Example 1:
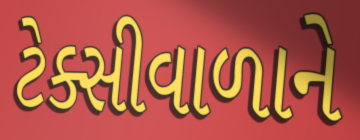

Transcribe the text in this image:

ટેક્સીવાળાને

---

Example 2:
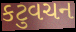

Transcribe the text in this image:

કટુવચન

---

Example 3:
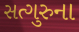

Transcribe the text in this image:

સત્ગુરુના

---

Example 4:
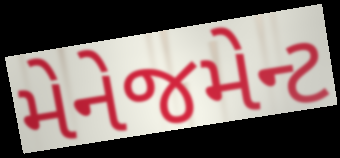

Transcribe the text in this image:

મેનેજમેન્ટ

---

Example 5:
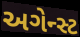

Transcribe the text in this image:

અગેન્સ્ટ